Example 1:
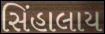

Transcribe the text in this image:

સિંહાલાય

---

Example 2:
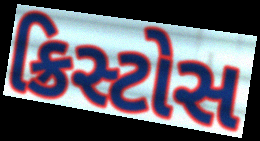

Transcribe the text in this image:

ક્રિસ્ટોસ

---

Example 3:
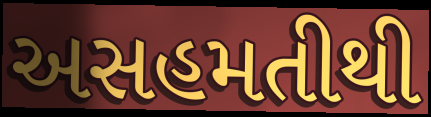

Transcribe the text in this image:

અસહમતીથી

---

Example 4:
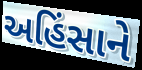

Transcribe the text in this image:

અહિંસાને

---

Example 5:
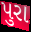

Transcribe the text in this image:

પુરા